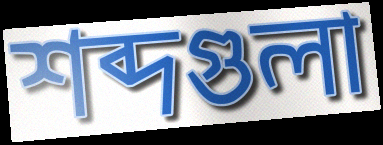
শব্দগুলা